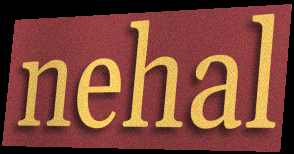
nehal